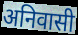
अनिवासी